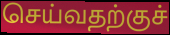
செய்வதற்குச்